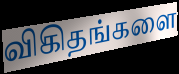
விகிதங்களை